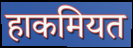
हाकमियत